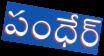
పంధేర్